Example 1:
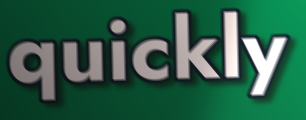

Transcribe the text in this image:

quickly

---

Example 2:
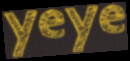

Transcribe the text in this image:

yeye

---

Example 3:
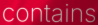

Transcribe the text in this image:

contains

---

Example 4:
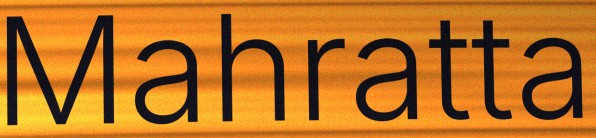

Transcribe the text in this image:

Mahratta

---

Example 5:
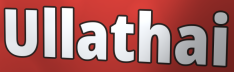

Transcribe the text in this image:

Ullathai